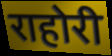
राहोरी